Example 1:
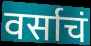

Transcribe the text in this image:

वर्साचं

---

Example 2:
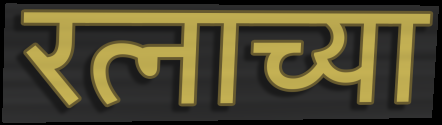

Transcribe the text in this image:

रत्नाच्या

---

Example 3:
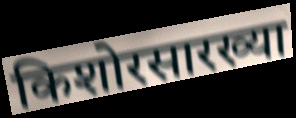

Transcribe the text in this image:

किशोरसारख्या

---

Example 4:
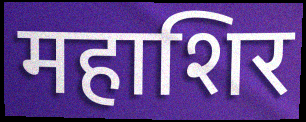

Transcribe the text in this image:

महाशिर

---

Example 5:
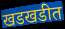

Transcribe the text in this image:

खडखडीत